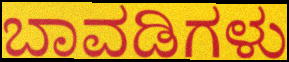
ಬಾವಡಿಗಳು